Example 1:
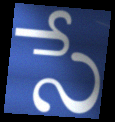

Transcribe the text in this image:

సే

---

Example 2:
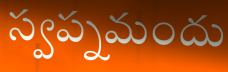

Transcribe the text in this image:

స్వప్నమందు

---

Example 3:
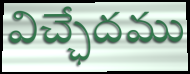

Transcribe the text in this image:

విచ్ఛేదము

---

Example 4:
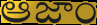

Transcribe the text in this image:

ఆజాం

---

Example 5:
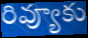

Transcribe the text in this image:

రివ్యూకు